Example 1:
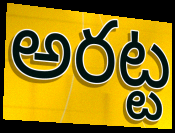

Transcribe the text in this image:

అరట్ట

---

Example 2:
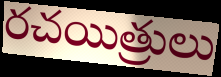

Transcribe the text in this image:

రచయిత్రులు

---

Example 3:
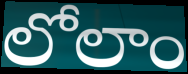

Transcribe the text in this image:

లోలాం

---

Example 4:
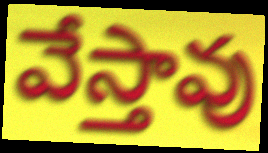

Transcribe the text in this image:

వేస్తావు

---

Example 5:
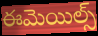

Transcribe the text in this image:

ఈమెయిల్స్